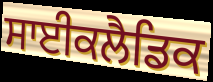
ਸਾਈਕਲੈਡਿਕ